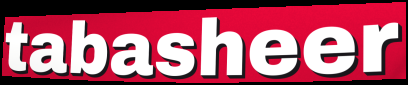
tabasheer